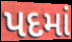
પદમાં